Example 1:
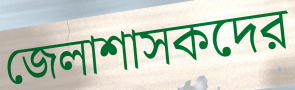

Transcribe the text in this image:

জেলাশাসকদের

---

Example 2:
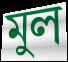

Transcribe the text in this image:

মুল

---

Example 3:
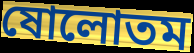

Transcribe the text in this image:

ষোলোতম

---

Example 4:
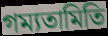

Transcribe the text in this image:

গম্যতামিতি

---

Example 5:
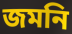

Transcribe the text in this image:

জমনি